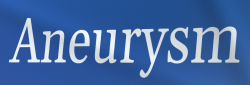
Aneurysm